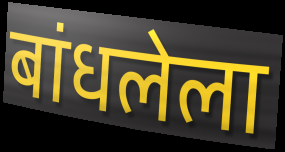
बांधलेला